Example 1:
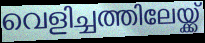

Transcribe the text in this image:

വെളിച്ചത്തിലേയ്ക്ക്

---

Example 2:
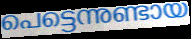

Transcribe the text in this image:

പെട്ടെന്നുണ്ടായ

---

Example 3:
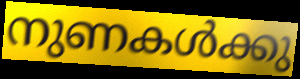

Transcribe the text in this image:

നുണകൾക്കു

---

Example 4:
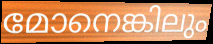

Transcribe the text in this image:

മോനെങ്കിലും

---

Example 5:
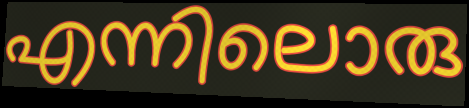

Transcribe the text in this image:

എന്നിലൊരു